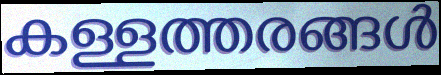
കള്ളത്തരങ്ങൾ